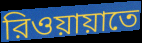
রিওয়ায়াতে